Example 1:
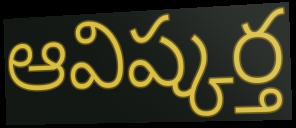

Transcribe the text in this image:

ఆవిష్కర్త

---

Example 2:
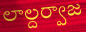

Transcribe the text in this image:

లాల్దర్వాజ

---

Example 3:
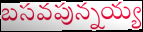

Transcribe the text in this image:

బసవపున్నయ్య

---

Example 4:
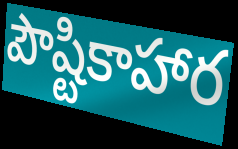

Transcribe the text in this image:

పౌష్టికాహార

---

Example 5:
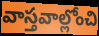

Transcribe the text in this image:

వాస్తవాల్లోంచి